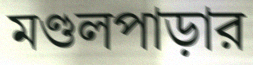
মণ্ডলপাড়ার